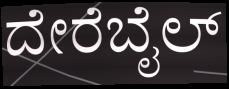
ದೇರೆಬೈಲ್